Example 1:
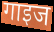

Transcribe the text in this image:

गाइज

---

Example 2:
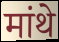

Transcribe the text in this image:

मांथे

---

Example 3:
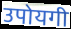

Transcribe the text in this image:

उपोयगी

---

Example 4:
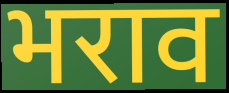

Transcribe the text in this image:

भराव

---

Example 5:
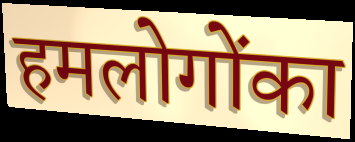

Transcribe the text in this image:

हमलोगोंका